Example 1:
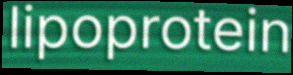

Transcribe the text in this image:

lipoprotein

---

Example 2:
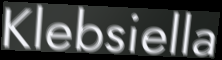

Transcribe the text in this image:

Klebsiella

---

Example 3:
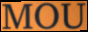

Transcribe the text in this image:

MOU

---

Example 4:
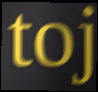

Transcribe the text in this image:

toj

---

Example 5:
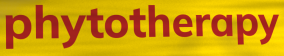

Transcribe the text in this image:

phytotherapy